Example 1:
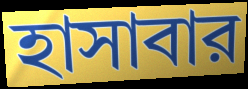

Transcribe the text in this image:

হাসাবার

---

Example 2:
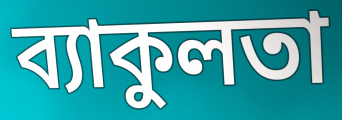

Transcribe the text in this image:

ব্যাকুলতা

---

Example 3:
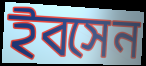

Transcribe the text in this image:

ইবসেন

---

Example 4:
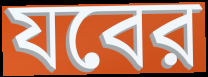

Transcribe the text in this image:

যবের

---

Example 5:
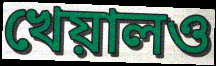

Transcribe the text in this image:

খেয়ালও